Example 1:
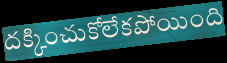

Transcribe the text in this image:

దక్కించుకోలేకపోయింది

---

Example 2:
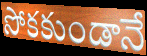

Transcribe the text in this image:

సోకకుండానే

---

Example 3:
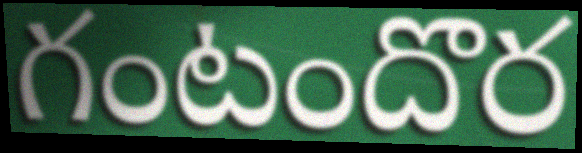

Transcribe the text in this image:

గంటందొర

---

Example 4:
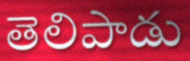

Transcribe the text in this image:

తెలిపాడు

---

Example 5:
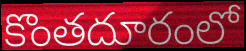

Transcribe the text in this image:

కొంతదూరంలో